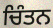
ਚਿੰਤਨ